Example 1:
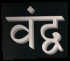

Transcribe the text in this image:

वंद्व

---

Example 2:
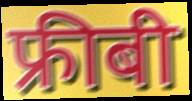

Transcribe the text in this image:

फ्रीबी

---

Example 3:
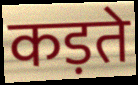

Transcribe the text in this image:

कड़ते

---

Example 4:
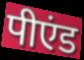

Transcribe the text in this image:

पीएंड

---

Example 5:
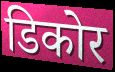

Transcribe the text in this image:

डिकोर